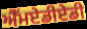
ਐੱਮਏਡੀਏਡੀ